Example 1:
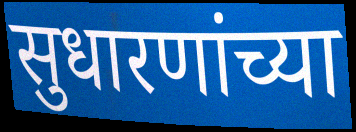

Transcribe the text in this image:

सुधारणांच्या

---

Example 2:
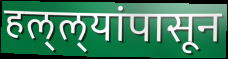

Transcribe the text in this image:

हल्ल्यांपासून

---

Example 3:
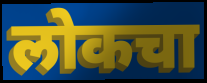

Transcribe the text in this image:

लोकचा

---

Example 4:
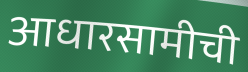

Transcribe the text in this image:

आधारसामीची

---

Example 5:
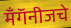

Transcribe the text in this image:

मँगॅनीजचे